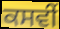
ਕਸਵੀਂ